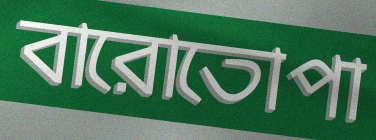
বারোতোপা